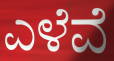
ಎಳೆವೆ